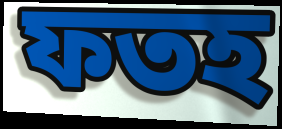
ফতহ